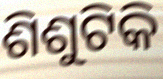
ଶିଶୁଟିକି